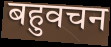
बहुवचन